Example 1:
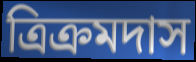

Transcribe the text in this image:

ত্রিক্রমদাস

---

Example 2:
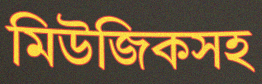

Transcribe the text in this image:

মিউজিকসহ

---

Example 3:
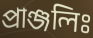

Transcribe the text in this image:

প্রাঞ্জলিঃ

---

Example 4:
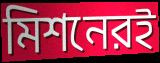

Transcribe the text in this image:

মিশনেরই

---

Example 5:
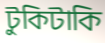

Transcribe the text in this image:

টুকিটাকি